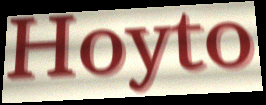
Hoyto